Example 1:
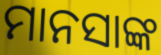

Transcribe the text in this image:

ମାନସାଙ୍କ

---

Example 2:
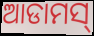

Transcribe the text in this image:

ଆଡାମସ୍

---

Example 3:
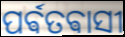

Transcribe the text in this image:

ପର୍ଵତଵାସୀ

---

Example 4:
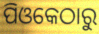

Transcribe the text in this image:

ପିଓକେଠାରୁ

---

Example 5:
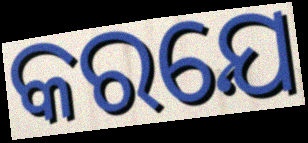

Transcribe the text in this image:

କରଯେ